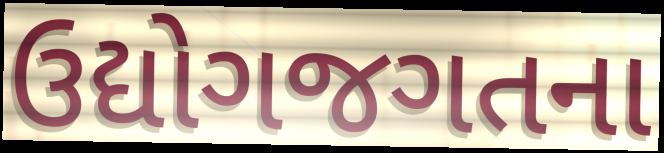
ઉદ્યોગજગતના